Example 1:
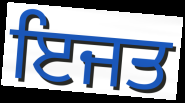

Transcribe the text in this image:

ਇਜਤ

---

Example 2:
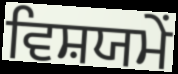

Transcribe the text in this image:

ਵਿਸ਼ਯਮੇਂ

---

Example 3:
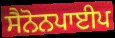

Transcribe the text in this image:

ਸੈਨੋਨਪਾਈਪ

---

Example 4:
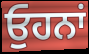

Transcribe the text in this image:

ਓੁਹਨਾਂ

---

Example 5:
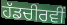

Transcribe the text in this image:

ਹੱਡਚੀਰਵੀਂ